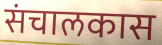
संचालकास